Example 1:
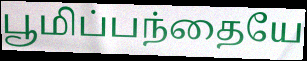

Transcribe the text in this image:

பூமிப்பந்தையே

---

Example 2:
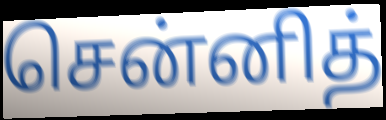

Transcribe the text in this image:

சென்னித்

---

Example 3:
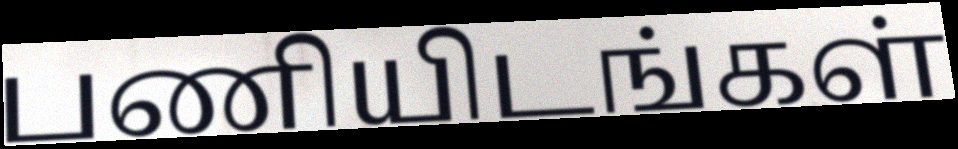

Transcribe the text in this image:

பணியிடங்கள்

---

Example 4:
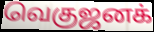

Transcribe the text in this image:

வெகுஜனக்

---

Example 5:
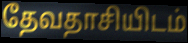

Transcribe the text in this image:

தேவதாசியிடம்